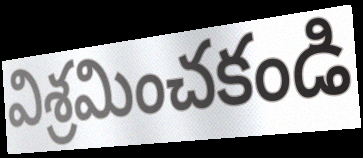
విశ్రమించకండి